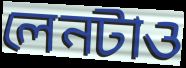
লেনটাও